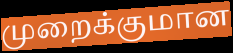
முறைக்குமான